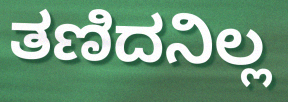
ತಣಿದನಿಲ್ಲ